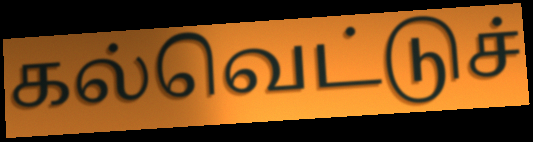
கல்வெட்டுச்